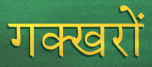
गक्खरों